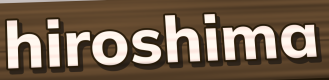
hiroshima